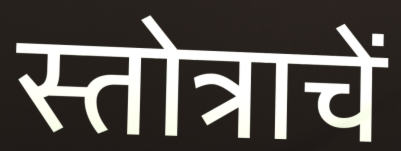
स्तोत्राचें